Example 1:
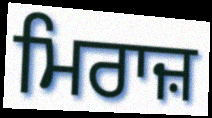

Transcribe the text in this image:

ਮਿਰਾਜ਼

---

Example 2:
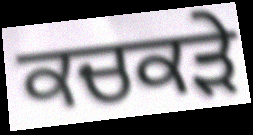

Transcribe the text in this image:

ਕਚਕੜੇ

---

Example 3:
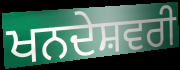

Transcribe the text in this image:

ਖਨਦੇਸ਼ਵਰੀ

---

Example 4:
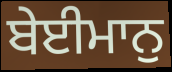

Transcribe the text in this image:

ਬੇਈਮਾਨੁ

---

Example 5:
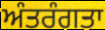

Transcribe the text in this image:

ਅੰਤਰੰਗਤਾ